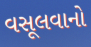
વસૂલવાનો